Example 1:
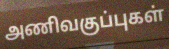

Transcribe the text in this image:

அணிவகுப்புகள்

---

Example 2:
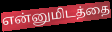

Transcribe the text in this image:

என்னுமிடத்தை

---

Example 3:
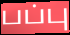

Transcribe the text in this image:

பப்பு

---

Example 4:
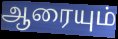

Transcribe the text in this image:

ஆரையும்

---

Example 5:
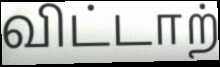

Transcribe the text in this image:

விட்டாற்